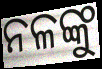
ନଳଙ୍କୁ